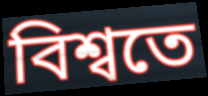
বিশ্বতে